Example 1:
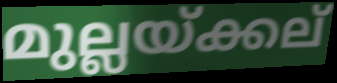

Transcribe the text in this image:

മുല്ലയ്ക്കല്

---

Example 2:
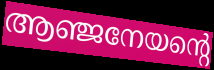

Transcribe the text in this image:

ആഞ്ജനേയന്റെ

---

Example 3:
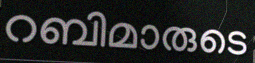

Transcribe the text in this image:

റബിമാരുടെ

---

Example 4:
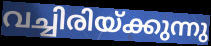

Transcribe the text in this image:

വച്ചിരിയ്ക്കുന്നു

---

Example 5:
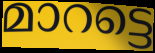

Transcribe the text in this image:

മാറട്ടെ